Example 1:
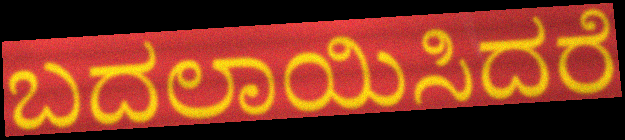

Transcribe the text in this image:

ಬದಲಾಯಿಸಿದರೆ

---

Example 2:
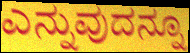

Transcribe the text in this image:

ಎನ್ನುವುದನ್ನೂ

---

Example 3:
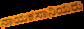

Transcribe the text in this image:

ನಾಯಕಸಾನಿಯರು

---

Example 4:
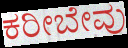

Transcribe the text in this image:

ಕರೀಬೇವು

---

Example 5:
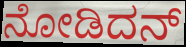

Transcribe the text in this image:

ನೋಡಿದನ್